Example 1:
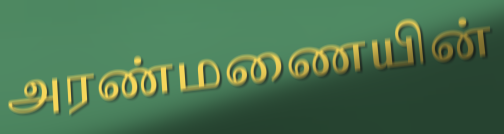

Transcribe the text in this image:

அரண்மணையின்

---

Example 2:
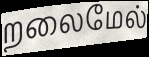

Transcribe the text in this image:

றலைமேல்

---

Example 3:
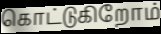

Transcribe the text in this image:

கொட்டுகிறோம்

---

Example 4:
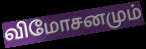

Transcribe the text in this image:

விமோசனமும்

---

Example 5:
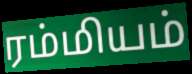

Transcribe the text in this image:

ரம்மியம்